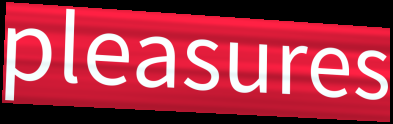
pleasures